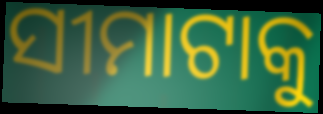
ସୀମାଟାକୁ